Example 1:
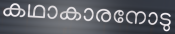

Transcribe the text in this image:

കഥാകാരനോടു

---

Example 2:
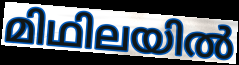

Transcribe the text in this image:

മിഥിലയിൽ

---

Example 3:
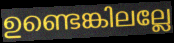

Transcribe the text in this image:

ഉണ്ടെങ്കിലല്ലേ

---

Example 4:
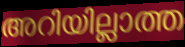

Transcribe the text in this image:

അറിയില്ലാത്ത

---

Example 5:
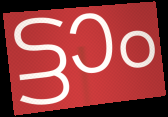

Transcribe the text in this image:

ട്ടാം